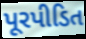
પૂરપીડિત